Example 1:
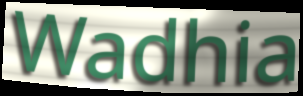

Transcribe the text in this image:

Wadhia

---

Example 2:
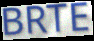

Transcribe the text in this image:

BRTE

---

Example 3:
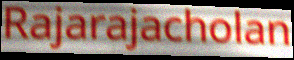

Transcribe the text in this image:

Rajarajacholan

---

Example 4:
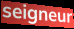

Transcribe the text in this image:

seigneur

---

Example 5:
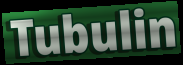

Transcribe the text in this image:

Tubulin